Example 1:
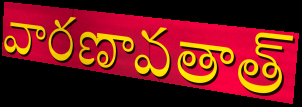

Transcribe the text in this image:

వారణావతాత్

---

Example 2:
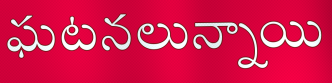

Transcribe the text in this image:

ఘటనలున్నాయి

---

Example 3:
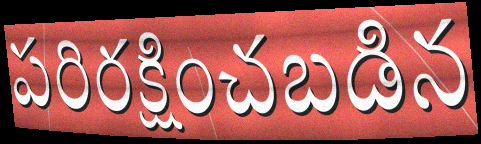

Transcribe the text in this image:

పరిరక్షించబడిన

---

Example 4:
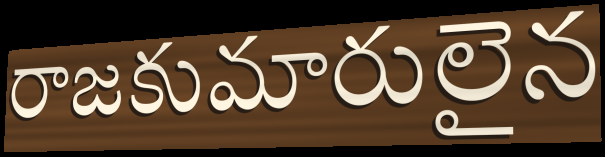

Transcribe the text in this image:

రాజకుమారులైన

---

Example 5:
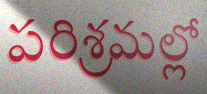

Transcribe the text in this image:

పరిశ్రమల్లో